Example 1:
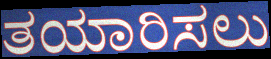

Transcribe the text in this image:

ತಯಾರಿಸಲು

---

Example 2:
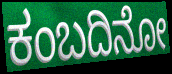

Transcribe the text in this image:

ಕಂಬದಿನೋ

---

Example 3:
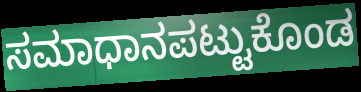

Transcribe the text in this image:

ಸಮಾಧಾನಪಟ್ಟುಕೊಂಡ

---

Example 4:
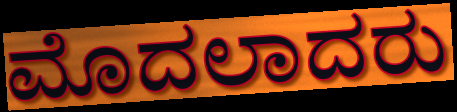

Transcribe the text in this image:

ಮೊದಲಾದರು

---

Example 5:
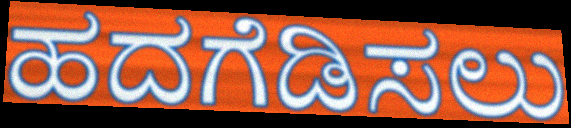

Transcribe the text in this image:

ಹದಗೆಡಿಸಲು